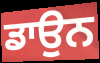
ਡਾਉਨ